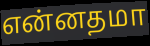
என்னதமா